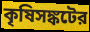
কৃষিসঙ্কটের